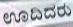
ಊದಿದರು